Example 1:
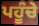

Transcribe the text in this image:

ਪਹੂੰਚੇ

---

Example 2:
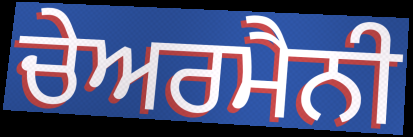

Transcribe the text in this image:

ਚੇਅਰਮੈਨੀ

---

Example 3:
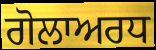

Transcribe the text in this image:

ਗੋਲਾਅਰਧ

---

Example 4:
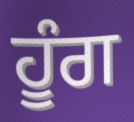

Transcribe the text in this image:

ਹੂੰਗ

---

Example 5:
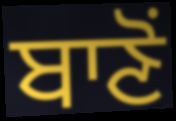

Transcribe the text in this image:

ਬਾਣੋਂ